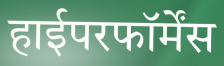
हाईपरफॉर्मेंस